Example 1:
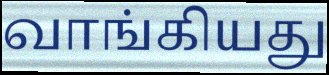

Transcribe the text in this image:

வாங்கியது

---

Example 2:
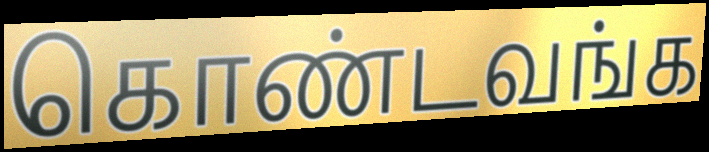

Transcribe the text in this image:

கொண்டவங்க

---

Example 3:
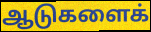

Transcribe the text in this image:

ஆடுகளைக்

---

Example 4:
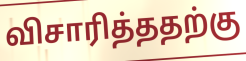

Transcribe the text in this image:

விசாரித்ததற்கு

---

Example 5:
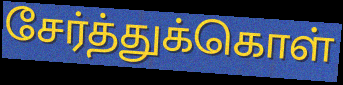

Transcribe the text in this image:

சேர்த்துக்கொள்